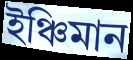
ইঞ্চিমান